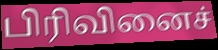
பிரிவினைச்